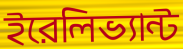
ইরেলিভ্যান্ট